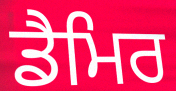
ਡੈਮਿਰ